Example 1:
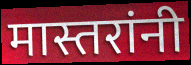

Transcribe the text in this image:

मास्तरांनी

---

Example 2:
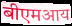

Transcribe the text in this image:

बीएमआय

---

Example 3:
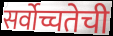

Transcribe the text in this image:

सर्वोच्चतेची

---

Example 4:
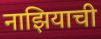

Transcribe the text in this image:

नाझियाची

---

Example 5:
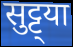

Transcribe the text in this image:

सुट्ट्या